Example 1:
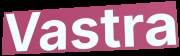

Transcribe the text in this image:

Vastra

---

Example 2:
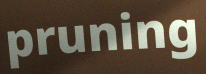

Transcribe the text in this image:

pruning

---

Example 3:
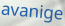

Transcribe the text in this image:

avanige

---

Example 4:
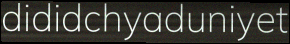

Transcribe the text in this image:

dididchyaduniyet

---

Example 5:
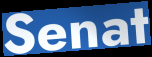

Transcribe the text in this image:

Senat